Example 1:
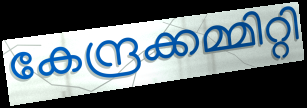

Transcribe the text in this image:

കേന്ദ്രക്കമ്മിറ്റി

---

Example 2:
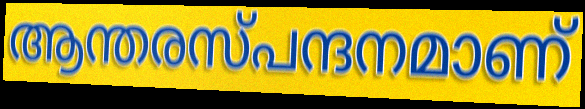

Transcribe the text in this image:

ആന്തരസ്പന്ദനമാണ്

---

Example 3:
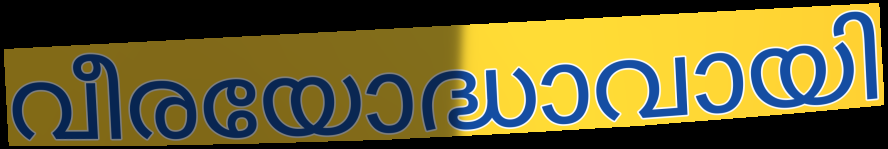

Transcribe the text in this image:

വീരയോദ്ധാവായി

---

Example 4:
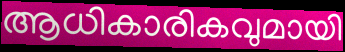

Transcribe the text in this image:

ആധികാരികവുമായി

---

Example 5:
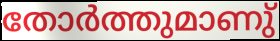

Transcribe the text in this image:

തോർത്തുമാണു്